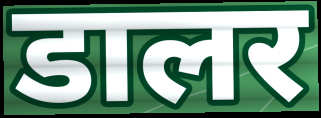
डालर